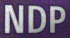
NDP